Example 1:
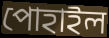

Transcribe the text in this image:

পোহাইল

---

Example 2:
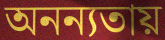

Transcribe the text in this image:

অনন্যতায়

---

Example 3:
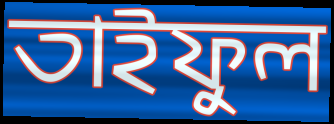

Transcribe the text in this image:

তাইফুল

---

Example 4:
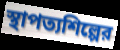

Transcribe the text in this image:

স্থাপত্যশিল্পের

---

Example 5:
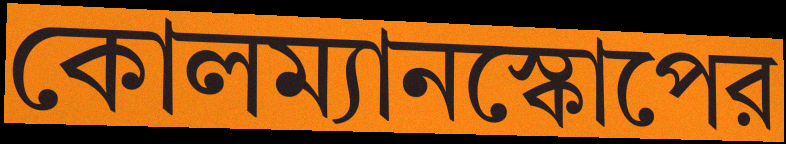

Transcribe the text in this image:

কোলম্যানস্কোপের